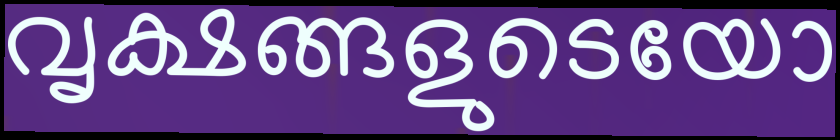
വൃക്ഷങ്ങളുടെയോ